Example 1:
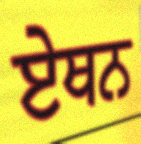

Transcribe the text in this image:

ਏਥਨ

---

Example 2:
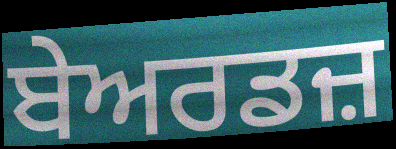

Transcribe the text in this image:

ਬੇਅਰਡਜ਼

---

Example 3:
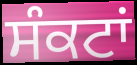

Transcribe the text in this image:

ਸੰਕਟਾਂ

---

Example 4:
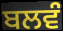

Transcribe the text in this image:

ਬਲਵੰ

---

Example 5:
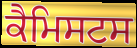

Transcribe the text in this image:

ਕੈਮਿਸਟਸ